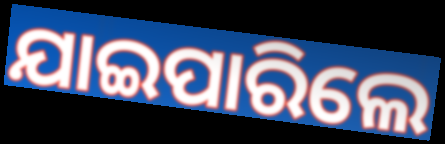
ଯାଇପାରିଲେ